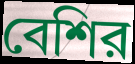
বেশির